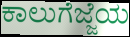
ಕಾಲುಗೆಜ್ಜೆಯ